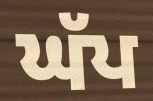
ਘੱਪ